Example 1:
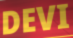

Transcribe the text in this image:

DEVI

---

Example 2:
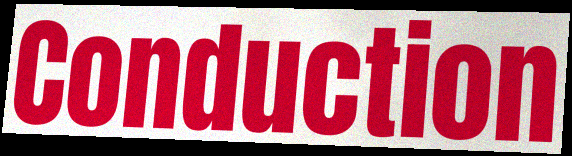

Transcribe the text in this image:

Conduction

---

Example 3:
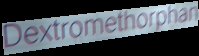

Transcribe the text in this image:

Dextromethorphan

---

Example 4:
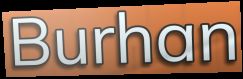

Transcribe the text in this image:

Burhan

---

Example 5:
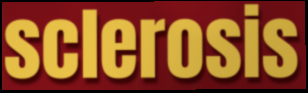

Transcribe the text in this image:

sclerosis